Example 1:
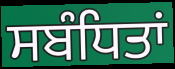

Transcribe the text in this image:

ਸਬੰਧਿਤਾਂ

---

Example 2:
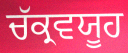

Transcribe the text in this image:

ਚੱਕ੍ਰਵਯੂਹ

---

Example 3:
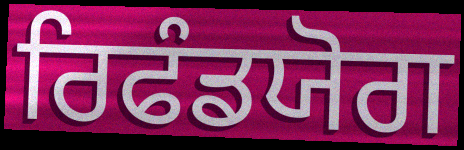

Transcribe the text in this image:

ਰਿਫੰਡਯੋਗ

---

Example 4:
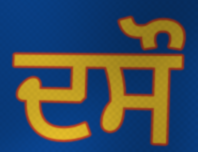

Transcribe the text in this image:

ਦਸੌ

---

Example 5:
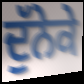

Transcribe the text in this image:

ਦੁੱਨੇਕੇ